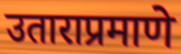
उताराप्रमाणे